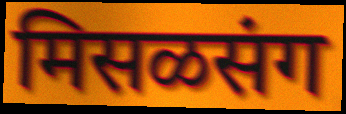
मिसळसंग